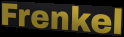
Frenkel